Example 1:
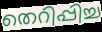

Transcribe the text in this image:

തെറിപ്പിച്ച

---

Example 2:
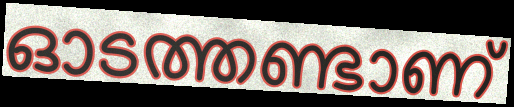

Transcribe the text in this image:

ഓടത്തണ്ടാണ്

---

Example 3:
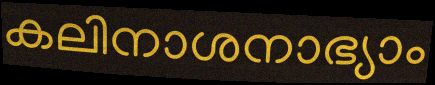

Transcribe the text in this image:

കലിനാശനാഭ്യാം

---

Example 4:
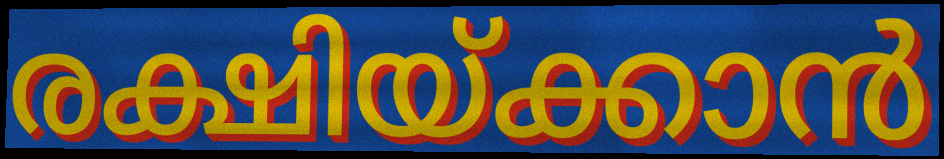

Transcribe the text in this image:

രക്ഷിയ്ക്കാൻ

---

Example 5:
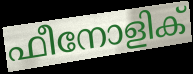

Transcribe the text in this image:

ഫീനോളിക്